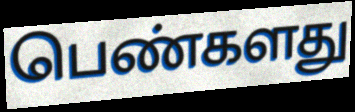
பெண்களது